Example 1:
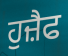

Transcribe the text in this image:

ਹੁਜ਼ੈਫ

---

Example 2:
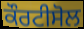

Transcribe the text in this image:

ਕੌਰਟੀਸੋਲ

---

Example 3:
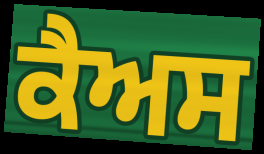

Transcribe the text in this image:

ਕੈਅਸ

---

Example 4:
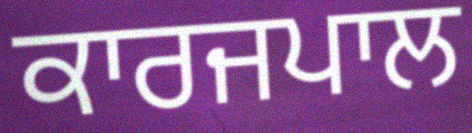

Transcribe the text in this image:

ਕਾਰਜਪਾਲ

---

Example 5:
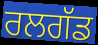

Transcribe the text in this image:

ਰਲਗੱਡ